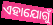
ଏହାଯୋଗୁଁ